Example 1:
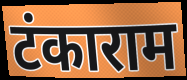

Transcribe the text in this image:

टंकाराम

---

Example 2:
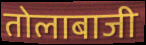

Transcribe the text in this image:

तोलाबाजी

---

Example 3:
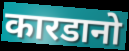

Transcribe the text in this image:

कारडानो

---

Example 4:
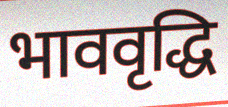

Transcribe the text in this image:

भाववृद्धि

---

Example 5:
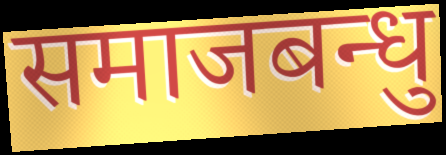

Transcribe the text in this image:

समाजबन्धु